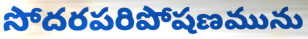
సోదరపరిపోషణమును